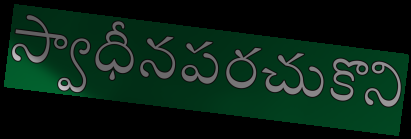
స్వాధీనపరచుకొని